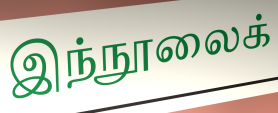
இந்நூலைக்